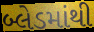
બ્લેડમાંથી